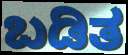
ಬಡಿತ